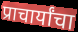
प्राचार्यांचा